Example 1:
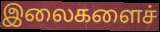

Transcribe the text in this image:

இலைகளைச்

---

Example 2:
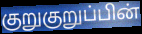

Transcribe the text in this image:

குறுகுறுப்பின்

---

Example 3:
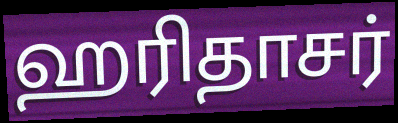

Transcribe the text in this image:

ஹரிதாசர்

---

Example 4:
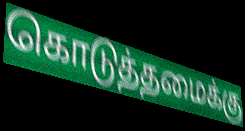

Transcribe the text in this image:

கொடுத்தமைக்கு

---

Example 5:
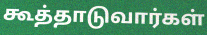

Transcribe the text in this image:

கூத்தாடுவார்கள்